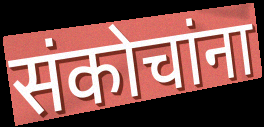
संकोचांना